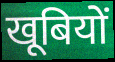
खूबियों